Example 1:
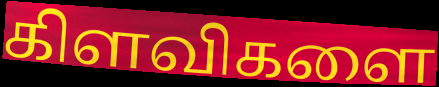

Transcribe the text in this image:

கிளவிகளை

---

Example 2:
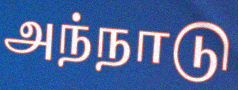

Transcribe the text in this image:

அந்நாடு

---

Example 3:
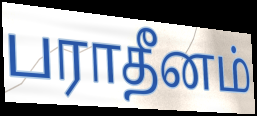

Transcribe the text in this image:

பராதீனம்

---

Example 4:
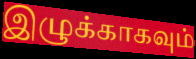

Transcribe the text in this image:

இழுக்காகவும்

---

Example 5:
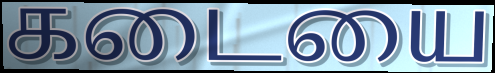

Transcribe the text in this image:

கடையை